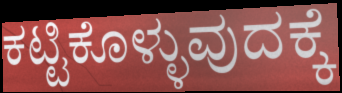
ಕಟ್ಟಿಕೊಳ್ಳುವುದಕ್ಕೆ